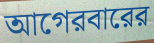
আগেরবারের